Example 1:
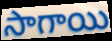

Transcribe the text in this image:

సాగాయి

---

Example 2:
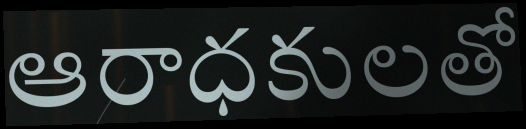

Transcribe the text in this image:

ఆరాధకులతో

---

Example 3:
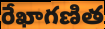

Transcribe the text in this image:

రేఖాగణిత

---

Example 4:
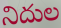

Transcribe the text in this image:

నిదుల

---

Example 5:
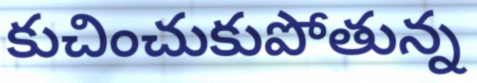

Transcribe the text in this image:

కుచించుకుపోతున్న